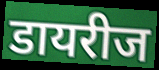
डायरीज